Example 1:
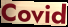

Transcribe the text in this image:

Covid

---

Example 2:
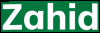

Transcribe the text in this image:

Zahid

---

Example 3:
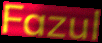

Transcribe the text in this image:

Fazul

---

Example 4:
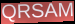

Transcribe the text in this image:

QRSAM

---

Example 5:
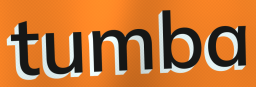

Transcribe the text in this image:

tumba